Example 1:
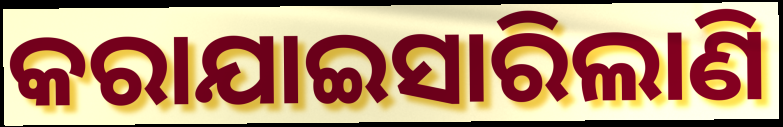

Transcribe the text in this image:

କରାଯାଇସାରିଲାଣି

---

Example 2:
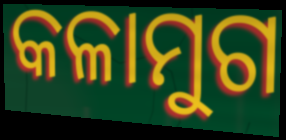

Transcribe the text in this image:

କଳାମୁଗ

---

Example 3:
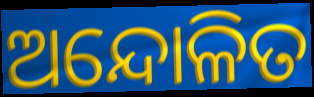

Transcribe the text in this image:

ଅନ୍ଦୋଳିତ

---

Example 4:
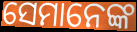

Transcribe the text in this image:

ସେମାନେଙ୍କ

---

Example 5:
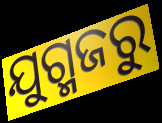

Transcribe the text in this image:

ଯୁଗ୍ମଜରୁ